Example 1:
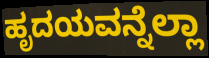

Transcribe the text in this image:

ಹೃದಯವನ್ನೆಲ್ಲಾ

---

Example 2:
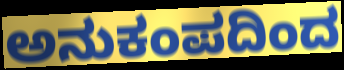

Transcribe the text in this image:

ಅನುಕಂಪದಿಂದ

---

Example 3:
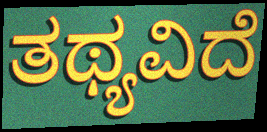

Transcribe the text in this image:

ತಥ್ಯವಿದೆ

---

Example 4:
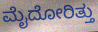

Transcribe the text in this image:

ಮೈದೋರಿತ್ತು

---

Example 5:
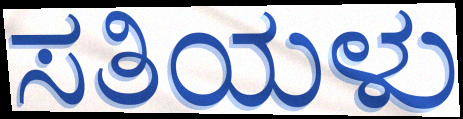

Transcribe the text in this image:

ಸತಿಯಳು